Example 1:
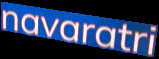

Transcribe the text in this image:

navaratri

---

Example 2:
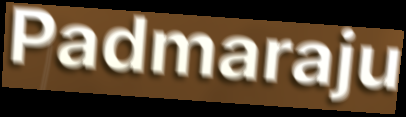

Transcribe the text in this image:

Padmaraju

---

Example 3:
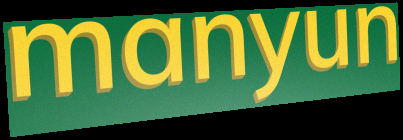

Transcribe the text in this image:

manyun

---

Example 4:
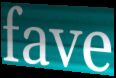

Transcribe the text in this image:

fave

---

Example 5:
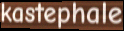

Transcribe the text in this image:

kastephale